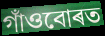
গাঁওবোৰত